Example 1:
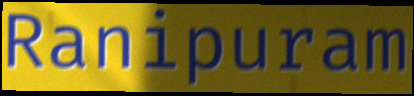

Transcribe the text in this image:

Ranipuram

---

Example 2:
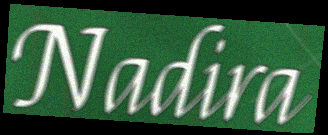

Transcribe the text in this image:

Nadira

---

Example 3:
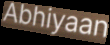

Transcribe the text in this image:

Abhiyaan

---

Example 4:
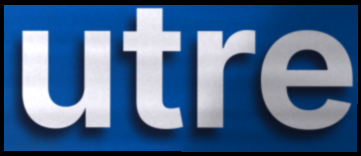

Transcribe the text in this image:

utre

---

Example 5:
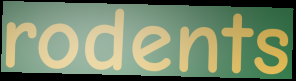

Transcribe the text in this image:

rodents